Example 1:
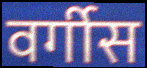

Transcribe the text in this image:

वर्गीस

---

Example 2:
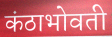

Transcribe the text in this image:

कंठाभोवती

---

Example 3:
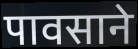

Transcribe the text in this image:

पावसाने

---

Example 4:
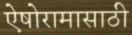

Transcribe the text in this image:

ऐषोरामासाठी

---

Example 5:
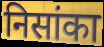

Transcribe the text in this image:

निसांका